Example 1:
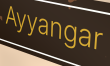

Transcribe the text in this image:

Ayyangar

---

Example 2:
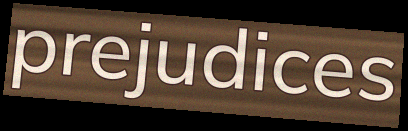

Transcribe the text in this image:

prejudices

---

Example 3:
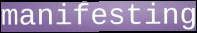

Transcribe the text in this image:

manifesting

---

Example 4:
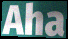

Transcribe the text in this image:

Aha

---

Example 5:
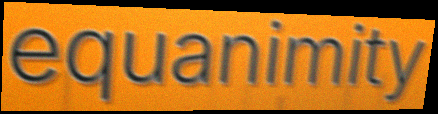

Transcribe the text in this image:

equanimity